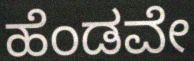
ಹೆಂಡವೇ